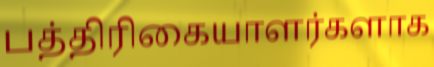
பத்திரிகையாளர்களாக